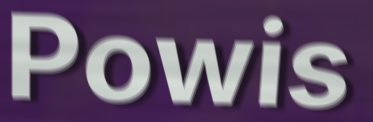
Powis